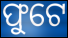
ଫୁଟେ